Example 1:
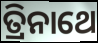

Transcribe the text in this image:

ତ୍ରିନାଥେ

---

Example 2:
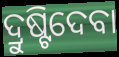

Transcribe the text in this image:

ଦ୍ରୁଷ୍ଟିଦେବା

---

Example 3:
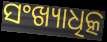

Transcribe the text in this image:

ସଂଖ୍ୟାଧିତ୍କ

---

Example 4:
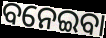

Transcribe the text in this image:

ବନେଇବା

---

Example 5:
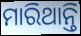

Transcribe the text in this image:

ମାରିଥାନ୍ତି